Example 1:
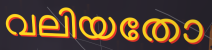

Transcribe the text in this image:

വലിയതോ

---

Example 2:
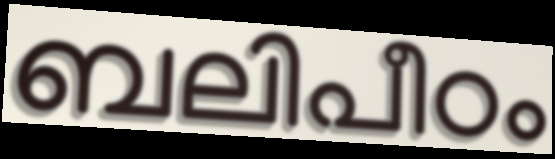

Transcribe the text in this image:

ബലിപീഠം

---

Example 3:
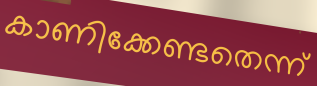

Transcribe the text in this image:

കാണിക്കേണ്ടതെന്ന്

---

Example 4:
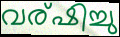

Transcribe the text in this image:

വര്ഷിച്ചു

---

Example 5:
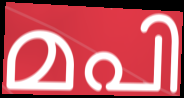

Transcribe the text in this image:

മപി